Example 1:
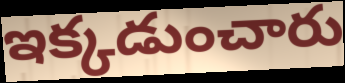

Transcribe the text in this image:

ఇక్కడుంచారు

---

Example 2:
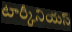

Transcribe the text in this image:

టార్కీనియస్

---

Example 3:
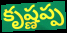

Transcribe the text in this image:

కృష్ణప్ప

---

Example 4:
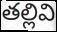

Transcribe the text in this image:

తల్లివి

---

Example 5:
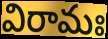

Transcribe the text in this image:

విరామః